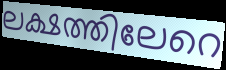
ലക്ഷത്തിലേറെ